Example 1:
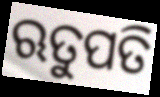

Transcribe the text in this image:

ଋତୁପତି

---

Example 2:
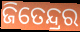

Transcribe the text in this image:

ଜିତେନ୍ଦ୍ରର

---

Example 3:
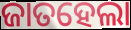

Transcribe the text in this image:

ଜାତହେଲା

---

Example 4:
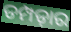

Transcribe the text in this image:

ଡମ୍ପଡ଼ାର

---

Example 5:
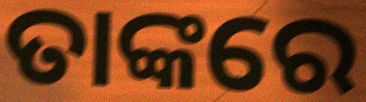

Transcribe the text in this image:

ତାଙ୍କରେ